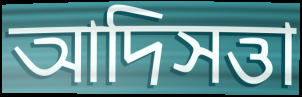
আদিসত্তা